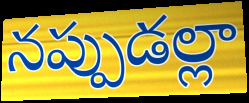
నప్పుడల్లా